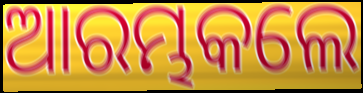
ଆରମ୍ଭକଲେ